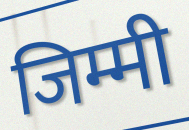
जिम्मी